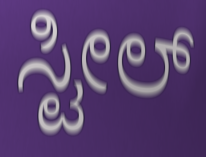
ಸ್ಟೀಲ್